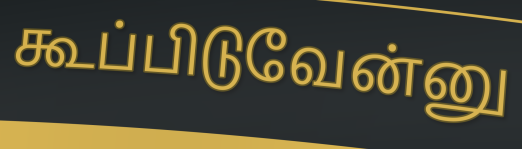
கூப்பிடுவேன்னு